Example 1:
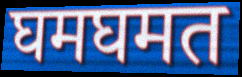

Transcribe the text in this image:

घमघमत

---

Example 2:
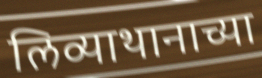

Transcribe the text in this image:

लिव्याथानाच्या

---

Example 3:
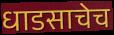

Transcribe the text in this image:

धाडसाचेच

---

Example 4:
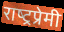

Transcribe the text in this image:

राष्ट्रप्रेमी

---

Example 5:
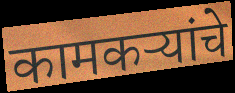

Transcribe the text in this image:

कामकऱ्यांचे